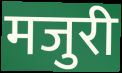
मजुरी